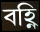
বহ্ণি